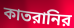
কাতরানির